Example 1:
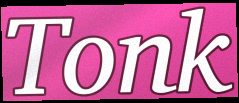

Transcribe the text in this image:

Tonk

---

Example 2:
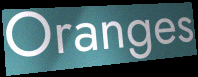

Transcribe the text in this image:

Oranges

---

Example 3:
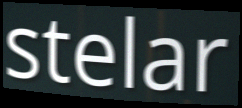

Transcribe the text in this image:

stelar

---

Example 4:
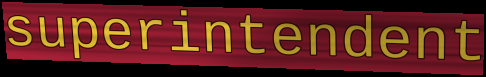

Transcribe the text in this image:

superintendent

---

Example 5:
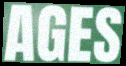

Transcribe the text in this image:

AGES